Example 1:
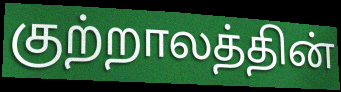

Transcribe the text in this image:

குற்றாலத்தின்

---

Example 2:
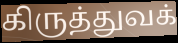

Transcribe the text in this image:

கிருத்துவக்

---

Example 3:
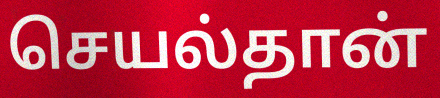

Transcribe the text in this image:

செயல்தான்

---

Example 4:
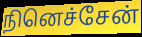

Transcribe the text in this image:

நினெச்சேன்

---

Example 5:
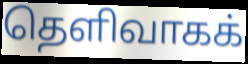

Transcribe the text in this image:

தெளிவாகக்